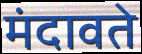
मंदावते